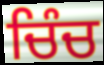
ਚਿੰਚ